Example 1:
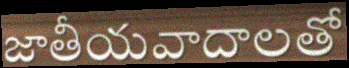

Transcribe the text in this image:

జాతీయవాదాలతో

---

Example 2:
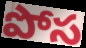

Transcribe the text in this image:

పోస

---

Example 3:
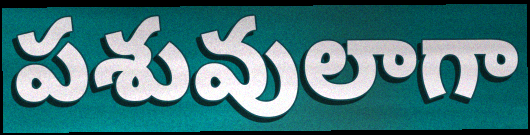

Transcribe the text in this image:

పశువులాగా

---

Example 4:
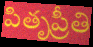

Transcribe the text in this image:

పితృప్రీతి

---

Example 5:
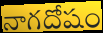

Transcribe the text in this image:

నాగదోషం